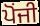
ਪੋਂਜੀ